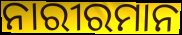
ନାରୀରମାନ